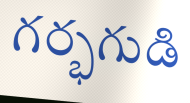
గర్భగుడి